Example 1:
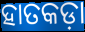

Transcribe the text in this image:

ହାତକଡ଼ା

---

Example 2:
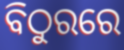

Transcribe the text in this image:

ବିଠୁରରେ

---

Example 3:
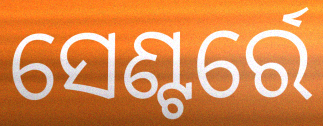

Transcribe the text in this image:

ସେଣ୍ଟର୍ରେ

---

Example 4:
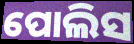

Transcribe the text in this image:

ପୋଲିସ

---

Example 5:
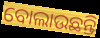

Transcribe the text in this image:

ବୋଲାଉଛନ୍ତି